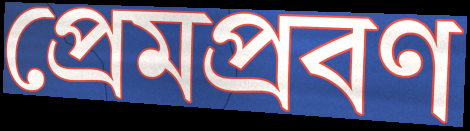
প্রেমপ্রবণ